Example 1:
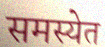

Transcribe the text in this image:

समस्येत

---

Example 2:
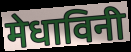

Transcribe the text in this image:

मेधाविनी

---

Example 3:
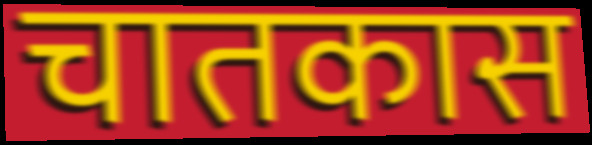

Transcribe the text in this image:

चातकास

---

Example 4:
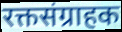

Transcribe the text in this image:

रक्तसंग्राहक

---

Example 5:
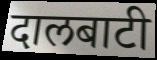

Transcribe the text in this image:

दालबाटी